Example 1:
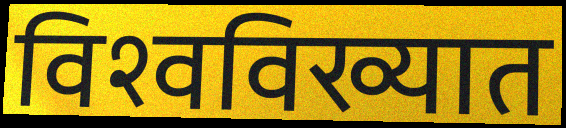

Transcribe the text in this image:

विश्वविख्यात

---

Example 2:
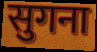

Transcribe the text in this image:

सुगना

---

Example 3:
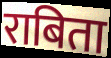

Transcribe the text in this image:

राबिता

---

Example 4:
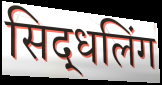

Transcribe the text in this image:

सिद्धलिंग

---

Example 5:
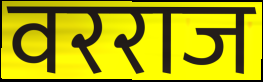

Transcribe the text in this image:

वरराज